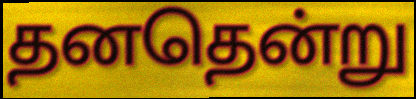
தனதென்று